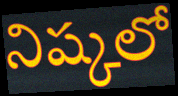
నిష్కలో